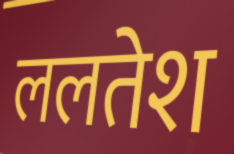
ललतेश